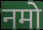
नमो